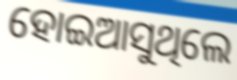
ହୋଇଆସୁଥିଲେ